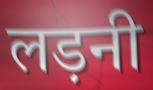
लड़नी